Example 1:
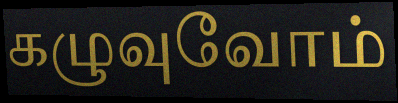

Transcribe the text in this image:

கழுவுவோம்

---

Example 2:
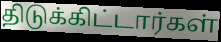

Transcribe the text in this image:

திடுக்கிட்டார்கள்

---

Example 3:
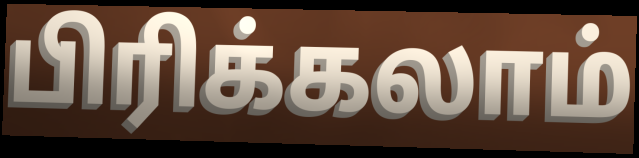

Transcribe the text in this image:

பிரிக்கலாம்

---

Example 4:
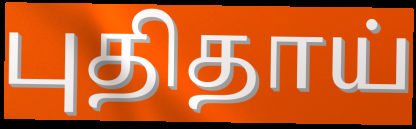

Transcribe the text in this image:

புதிதாய்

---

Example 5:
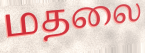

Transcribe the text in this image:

மதலை